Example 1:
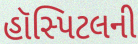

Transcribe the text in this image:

હૉસ્પિટલની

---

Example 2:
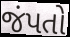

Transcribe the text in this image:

જંપતો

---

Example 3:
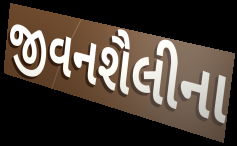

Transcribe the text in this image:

જીવનશૈલીના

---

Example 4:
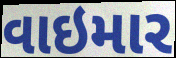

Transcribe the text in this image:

વાઇમાર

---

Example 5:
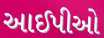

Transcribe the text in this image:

આઈપીઓ